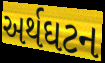
અર્થઘટન